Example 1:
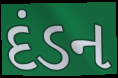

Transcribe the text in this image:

દંડન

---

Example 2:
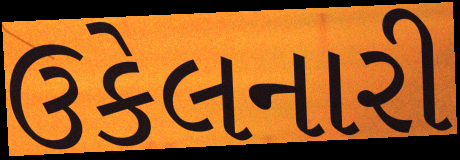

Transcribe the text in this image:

ઉકેલનારી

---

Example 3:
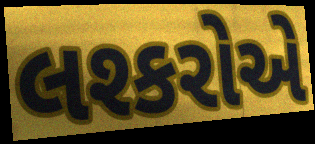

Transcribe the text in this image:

લશ્કરોએ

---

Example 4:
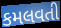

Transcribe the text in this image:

કમલવતી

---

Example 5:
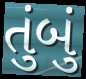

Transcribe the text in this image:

તુંબું